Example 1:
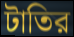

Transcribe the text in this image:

টাতির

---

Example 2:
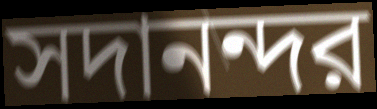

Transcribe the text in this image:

সদানন্দর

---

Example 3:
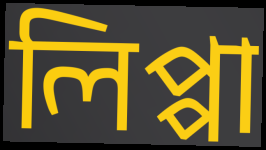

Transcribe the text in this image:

লিপ্পা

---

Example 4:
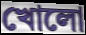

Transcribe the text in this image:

খোলো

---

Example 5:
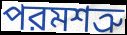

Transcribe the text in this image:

পরমশত্রু